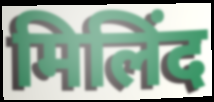
मिलिंद